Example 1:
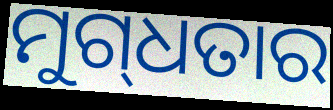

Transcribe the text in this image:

ମୁଗ୍‍ଧତାର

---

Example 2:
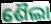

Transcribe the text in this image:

ଶୈଲା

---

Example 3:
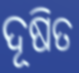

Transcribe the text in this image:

ଦୂଷିତ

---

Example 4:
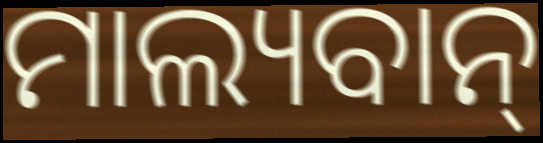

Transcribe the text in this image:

ମାଲ୍ୟବାନ୍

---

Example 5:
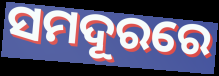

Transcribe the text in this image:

ସମଦୂରରେ